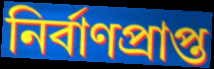
নির্বাণপ্রাপ্ত